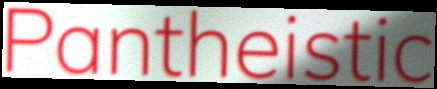
Pantheistic